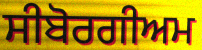
ਸੀਬੋਰਗੀਅਮ